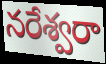
నరేశ్వరా